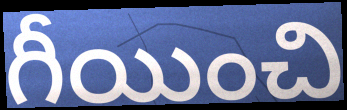
గీయించి